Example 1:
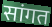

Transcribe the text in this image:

सांगत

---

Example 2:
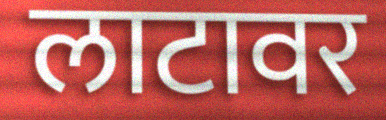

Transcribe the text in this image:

लाटावर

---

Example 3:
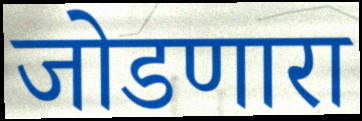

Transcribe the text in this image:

जोडणारा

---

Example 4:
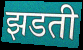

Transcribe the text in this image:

झडती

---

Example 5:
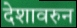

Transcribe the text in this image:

देशावरुन